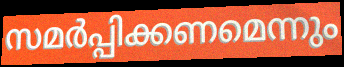
സമർപ്പിക്കണമെന്നും